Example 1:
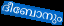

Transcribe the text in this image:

ദീബോനും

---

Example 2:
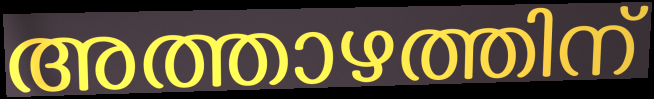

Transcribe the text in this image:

അത്താഴത്തിന്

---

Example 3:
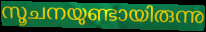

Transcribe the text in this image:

സൂചനയുണ്ടായിരുന്നു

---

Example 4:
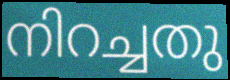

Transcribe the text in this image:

നിറച്ചതു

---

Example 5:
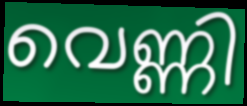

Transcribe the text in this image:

വെണ്ണി